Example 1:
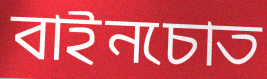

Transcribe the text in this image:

বাইনচোত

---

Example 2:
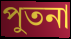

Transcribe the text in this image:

পুতনা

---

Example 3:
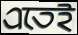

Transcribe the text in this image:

এতেই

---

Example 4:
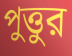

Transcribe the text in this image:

পুত্তুর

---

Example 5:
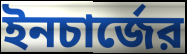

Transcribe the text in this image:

ইনচার্জের